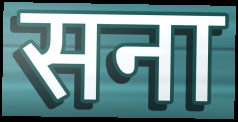
सना